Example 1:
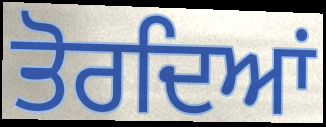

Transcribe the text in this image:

ਤੋਰਦਿਆਂ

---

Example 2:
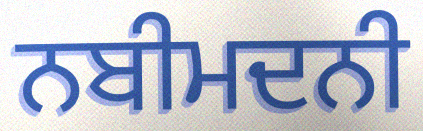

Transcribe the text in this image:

ਨਬੀਮਦਨੀ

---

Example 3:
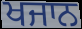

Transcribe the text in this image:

ਖਜਾਨ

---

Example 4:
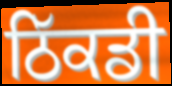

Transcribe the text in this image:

ਠਿੱਕਡੀ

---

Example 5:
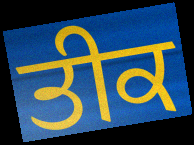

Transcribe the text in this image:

ਤੀਕ